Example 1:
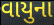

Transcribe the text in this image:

વાયુના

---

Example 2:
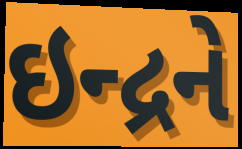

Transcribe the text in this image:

ઇન્દ્રને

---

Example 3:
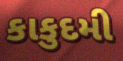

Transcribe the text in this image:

કાકુદમી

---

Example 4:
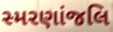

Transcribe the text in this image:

સ્મરણાંજલિ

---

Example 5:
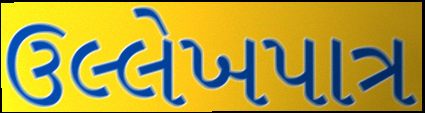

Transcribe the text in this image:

ઉલ્લેખપાત્ર